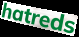
hatreds